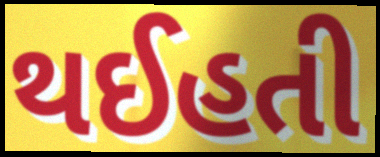
થઈહતી